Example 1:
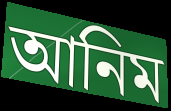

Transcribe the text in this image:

আনিম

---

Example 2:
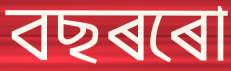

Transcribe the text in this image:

বছৰৰো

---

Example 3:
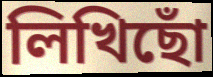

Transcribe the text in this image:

লিখিছোঁ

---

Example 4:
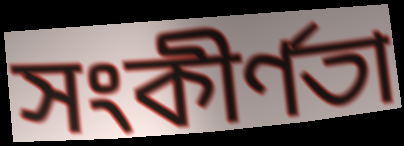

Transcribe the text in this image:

সংকীৰ্ণতা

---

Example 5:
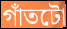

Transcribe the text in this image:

গাঁতটো